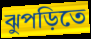
ঝুপড়িতে